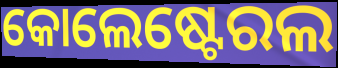
କୋଲେଷ୍ଟେରଲ